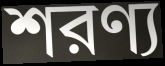
শরণ্য